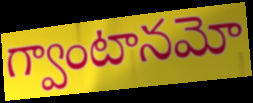
గ్వాంటానమో